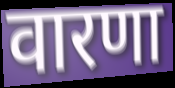
वारणा